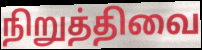
நிறுத்திவை